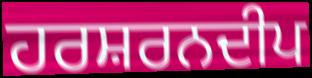
ਹਰਸ਼ਰਨਦੀਪ